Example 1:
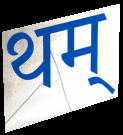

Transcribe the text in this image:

थम्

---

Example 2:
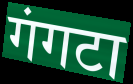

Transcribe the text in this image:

गंगटा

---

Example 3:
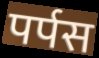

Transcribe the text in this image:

पर्पस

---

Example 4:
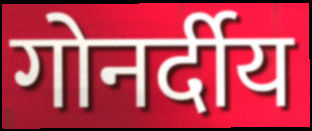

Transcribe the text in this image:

गोनर्दीय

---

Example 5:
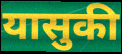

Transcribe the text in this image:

यासुकी